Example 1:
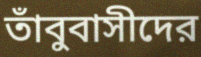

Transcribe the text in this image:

তাঁবুবাসীদের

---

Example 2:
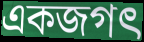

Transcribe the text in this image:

একজগৎ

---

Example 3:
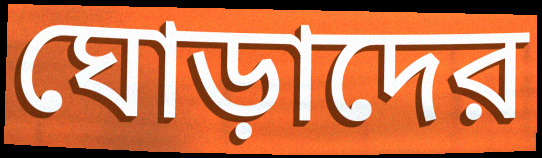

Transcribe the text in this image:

ঘোড়াদের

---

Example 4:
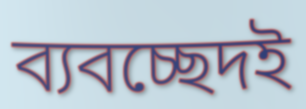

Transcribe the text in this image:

ব্যবচ্ছেদই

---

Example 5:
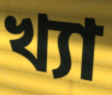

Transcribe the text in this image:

খ্যা